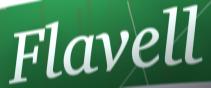
Flavell